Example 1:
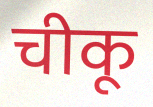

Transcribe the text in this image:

चीकू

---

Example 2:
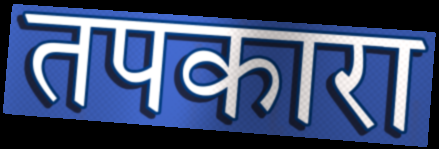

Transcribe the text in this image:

तपकारा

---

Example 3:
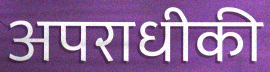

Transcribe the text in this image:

अपराधीकी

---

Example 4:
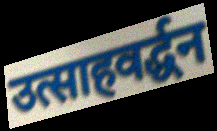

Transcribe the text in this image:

उत्साहवर्द्धन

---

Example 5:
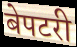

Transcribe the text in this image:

बेपटरी